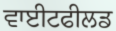
ਵਾਈਟਫੀਲਡ